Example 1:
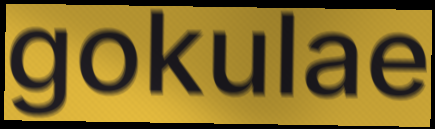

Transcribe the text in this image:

gokulae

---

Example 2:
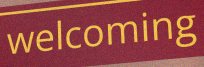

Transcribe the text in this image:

welcoming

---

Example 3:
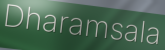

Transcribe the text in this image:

Dharamsala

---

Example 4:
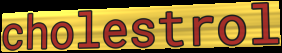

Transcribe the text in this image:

cholestrol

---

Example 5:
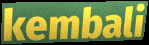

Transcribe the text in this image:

kembali